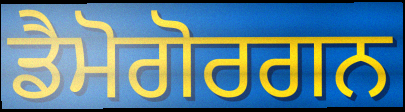
ਡੈਮੋਗੋਰਗਨ